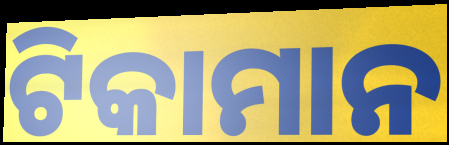
ଟିକାମାନ